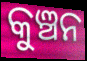
କୁଞ୍ଚନ